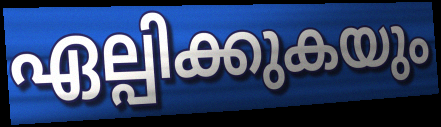
ഏല്പിക്കുകയും